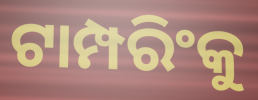
ଟାମ୍ପରିଂକୁ